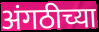
अंगठीच्या